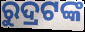
ରୁଦ୍ରଟଙ୍କ